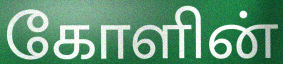
கோளின்